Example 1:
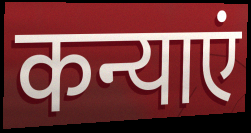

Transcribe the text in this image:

कन्याएं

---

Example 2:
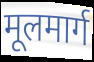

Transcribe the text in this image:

मूलमार्ग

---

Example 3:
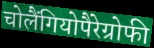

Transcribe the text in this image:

चोलैंगियोपैरेग्रोफी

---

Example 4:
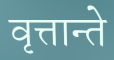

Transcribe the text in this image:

वृत्तान्ते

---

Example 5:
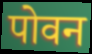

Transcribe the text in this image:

पोवन